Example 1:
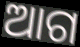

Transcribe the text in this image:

ଆଗ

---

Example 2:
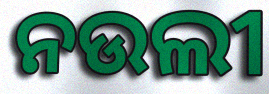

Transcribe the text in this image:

ନଉଲୀ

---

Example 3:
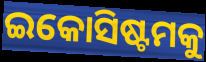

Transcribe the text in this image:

ଇକୋସିଷ୍ଟମକୁ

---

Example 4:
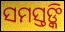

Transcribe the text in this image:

ସମସ୍ତଙ୍କି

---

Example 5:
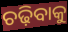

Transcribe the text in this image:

ଚଢ଼ିବାକୁ